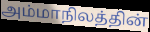
அம்மாநிலத்தின்